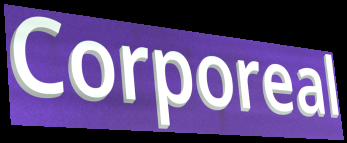
Corporeal